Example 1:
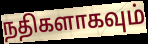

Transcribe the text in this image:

நதிகளாகவும்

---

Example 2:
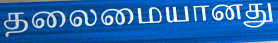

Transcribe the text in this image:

தலைமையானது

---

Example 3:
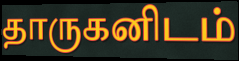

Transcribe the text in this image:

தாருகனிடம்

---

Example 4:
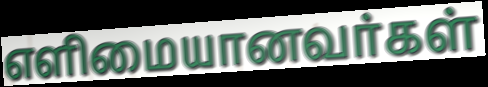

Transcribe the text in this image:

எளிமையானவர்கள்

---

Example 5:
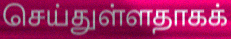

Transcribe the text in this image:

செய்துள்ளதாகக்